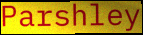
Parshley